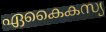
ഏകൈകസ്യ